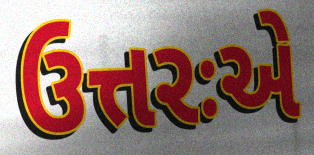
ઉત્તરઃએ